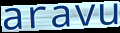
aravu